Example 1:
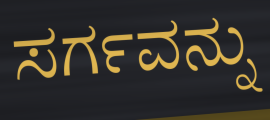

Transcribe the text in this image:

ಸರ್ಗವನ್ನು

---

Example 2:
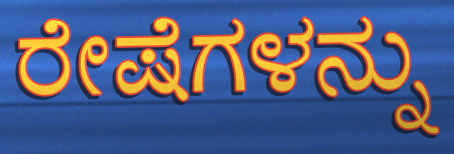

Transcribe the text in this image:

ರೇಷೆಗಳನ್ನು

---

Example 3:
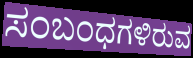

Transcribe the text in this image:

ಸಂಬಂಧಗಳಿರುವ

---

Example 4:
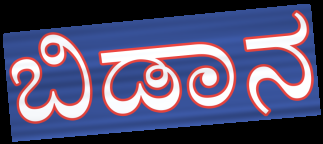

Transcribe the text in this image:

ಬಿಡಾನ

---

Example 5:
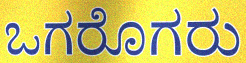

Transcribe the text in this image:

ಒಗರೊಗರು